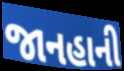
જાનહાની